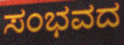
ಸಂಭವದ